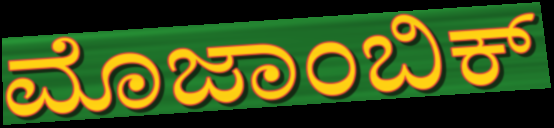
ಮೊಜಾಂಬಿಕ್